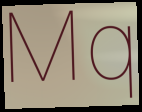
Mq